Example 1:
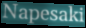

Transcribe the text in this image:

Napesaki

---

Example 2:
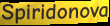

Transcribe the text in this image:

Spiridonova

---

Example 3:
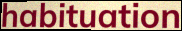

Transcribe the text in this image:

habituation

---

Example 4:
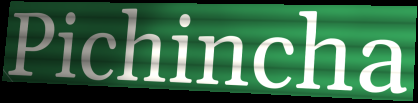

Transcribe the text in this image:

Pichincha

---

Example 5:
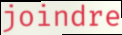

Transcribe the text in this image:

joindre